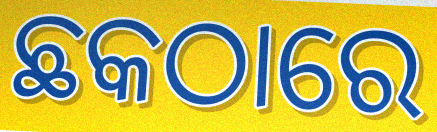
ଛକଠାରେ